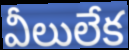
వీలులేక